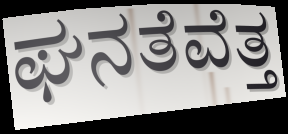
ಘನತೆವೆತ್ತ